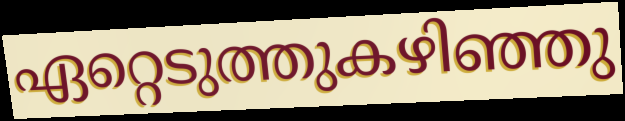
ഏറ്റെടുത്തുകഴിഞ്ഞു